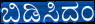
ಬಿಡಿಸಿದಂ